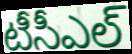
టీసీఎల్